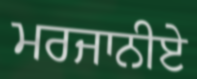
ਮਰਜਾਨੀਏ